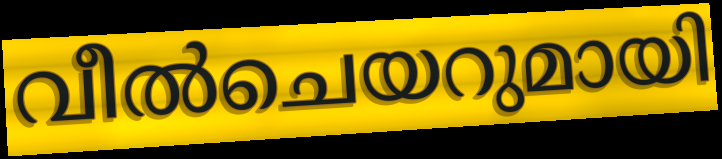
വീൽചെയറുമായി